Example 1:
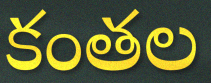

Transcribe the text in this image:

కంతల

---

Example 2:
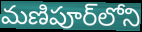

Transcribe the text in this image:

మణిపూర్‌లోని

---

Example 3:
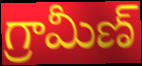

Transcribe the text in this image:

గ్రామీణ్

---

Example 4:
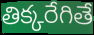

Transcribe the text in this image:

తిక్కరేగితే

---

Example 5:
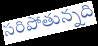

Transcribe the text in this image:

సరిపోతున్నది